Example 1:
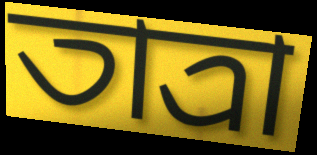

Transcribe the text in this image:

তাত্রা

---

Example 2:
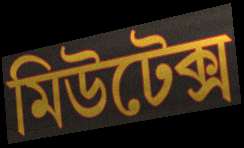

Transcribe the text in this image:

মিউটেক্স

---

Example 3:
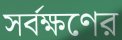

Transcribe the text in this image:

সর্বক্ষণের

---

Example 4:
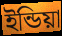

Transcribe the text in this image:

ইন্ডিয়া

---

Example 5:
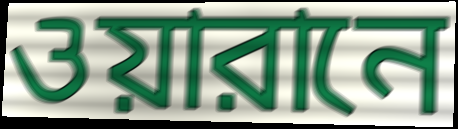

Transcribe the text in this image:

ওয়ারানে